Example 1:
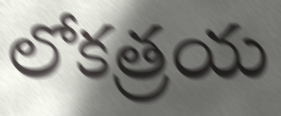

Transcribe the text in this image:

లోకత్రయ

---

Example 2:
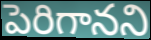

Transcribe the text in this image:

పెరిగానని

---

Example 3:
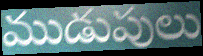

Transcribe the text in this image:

ముడుపులు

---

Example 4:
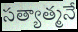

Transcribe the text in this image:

సత్యాత్మనే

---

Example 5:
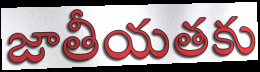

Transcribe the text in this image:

జాతీయతకు